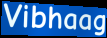
Vibhaag